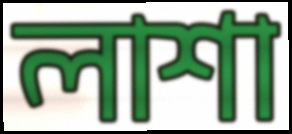
লাশা